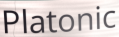
Platonic